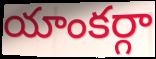
యాంకర్గా